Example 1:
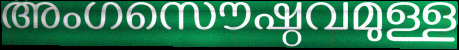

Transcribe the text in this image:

അംഗസൌഷ്ഠവമുള്ള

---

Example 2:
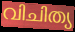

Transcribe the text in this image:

വിചിത്യ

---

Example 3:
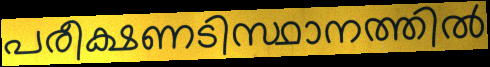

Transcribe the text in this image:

പരീക്ഷണടിസ്ഥാനത്തിൽ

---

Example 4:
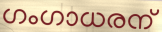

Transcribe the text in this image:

ഗംഗാധരന്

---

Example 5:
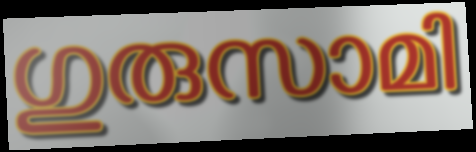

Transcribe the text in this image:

ഗുരുസാമി